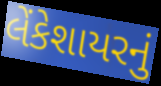
લેંકેશાયરનું